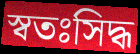
স্বতঃসিদ্ধ